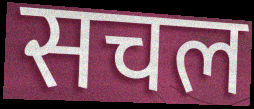
सचल